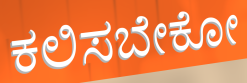
ಕಲಿಸಬೇಕೋ